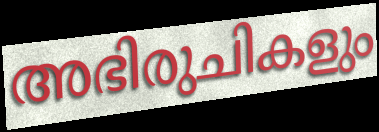
അഭിരുചികളും